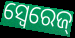
ସ୍ୱେରେଜ୍